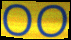
OO